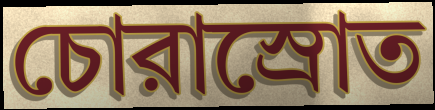
চোরাস্রোত